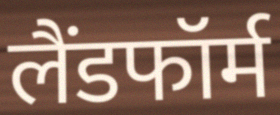
लैंडफॉर्म